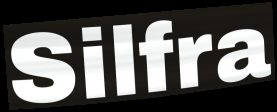
Silfra